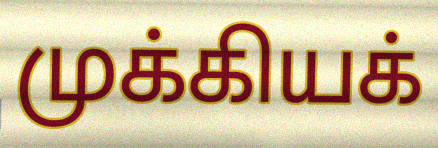
முக்கியக்